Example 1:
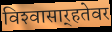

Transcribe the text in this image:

विश्वासार्हतेवर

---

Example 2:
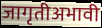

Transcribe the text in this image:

जागृतीअभावी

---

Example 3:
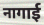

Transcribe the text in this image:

नागाई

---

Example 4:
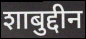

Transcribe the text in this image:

शाबुद्दीन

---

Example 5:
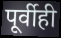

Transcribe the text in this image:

पूर्वीही